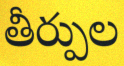
తీర్పుల